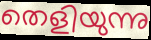
തെളിയുന്നു